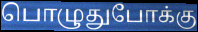
பொழுதுபோக்கு